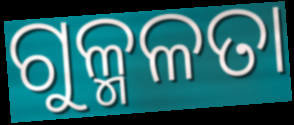
ଗୁଳ୍ମଳତା